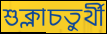
শুক্লাচতুৰ্থী